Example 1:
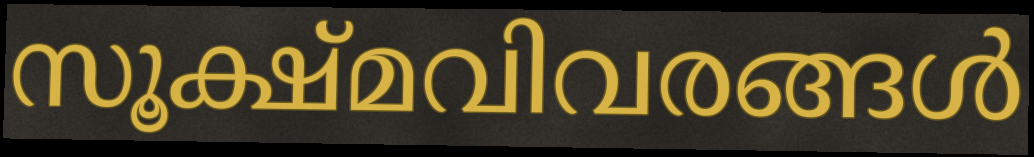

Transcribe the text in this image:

സൂക്ഷ്മവിവരങ്ങൾ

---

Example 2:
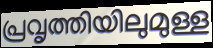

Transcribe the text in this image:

പ്രവൃത്തിയിലുമുള്ള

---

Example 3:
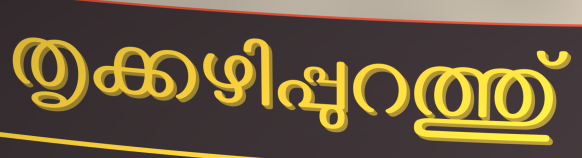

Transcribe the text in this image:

തൃക്കഴിപ്പുറത്തു്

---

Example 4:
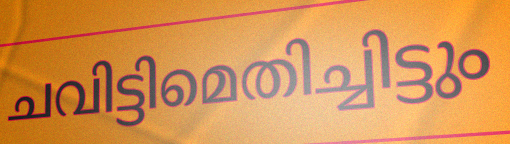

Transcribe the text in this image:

ചവിട്ടിമെതിച്ചിട്ടും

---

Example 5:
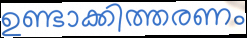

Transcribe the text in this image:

ഉണ്ടാക്കിത്തരണം